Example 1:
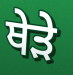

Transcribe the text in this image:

ਥੇੜੇ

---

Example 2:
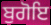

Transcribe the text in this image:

ਬੁਗੋਇ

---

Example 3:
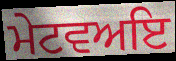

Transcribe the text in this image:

ਮੇਟਵਅਇ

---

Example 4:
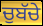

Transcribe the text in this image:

ਚੁਬੱਚੇ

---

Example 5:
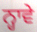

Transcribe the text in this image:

ਨ੍ਹਾਵੇ